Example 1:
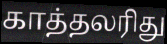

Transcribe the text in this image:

காத்தலரிது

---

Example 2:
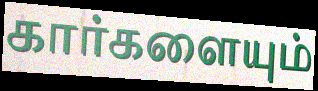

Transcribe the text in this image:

கார்களையும்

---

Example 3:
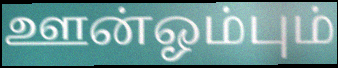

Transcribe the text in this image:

ஊன்ஓம்பும்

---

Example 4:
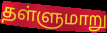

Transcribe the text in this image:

தள்ளுமாறு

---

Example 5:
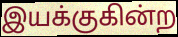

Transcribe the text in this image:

இயக்குகின்ற